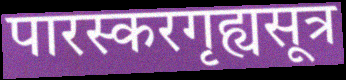
पारस्करगृह्यसूत्र